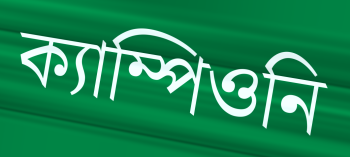
ক্যাম্পিওনি